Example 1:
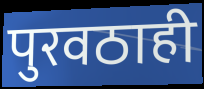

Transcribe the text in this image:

पुरवठाही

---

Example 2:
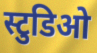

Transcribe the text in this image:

स्टुडिओ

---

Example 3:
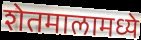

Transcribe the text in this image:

शेतमालामध्ये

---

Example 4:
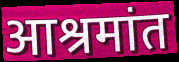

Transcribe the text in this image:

आश्रमांत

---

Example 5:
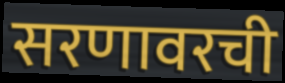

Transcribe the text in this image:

सरणावरची